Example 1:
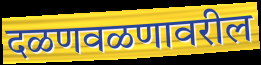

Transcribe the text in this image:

दळणवळणावरील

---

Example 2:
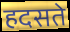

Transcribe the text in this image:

हदसते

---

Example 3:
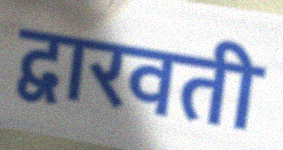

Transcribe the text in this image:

द्वारवती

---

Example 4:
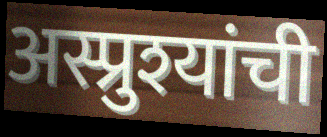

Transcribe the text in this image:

अस्प्रुश्यांची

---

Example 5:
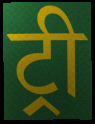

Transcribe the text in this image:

ट्री